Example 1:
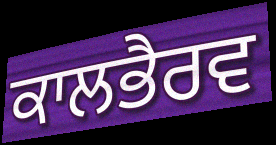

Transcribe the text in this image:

ਕਾਲਭੈਰਵ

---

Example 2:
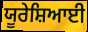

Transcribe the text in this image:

ਯੂਰੇਸ਼ਿਆਈ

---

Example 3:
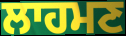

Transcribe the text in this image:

ਲਾਹਮਣ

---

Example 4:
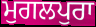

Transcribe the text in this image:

ਮੁਗਲਪੁਰਾ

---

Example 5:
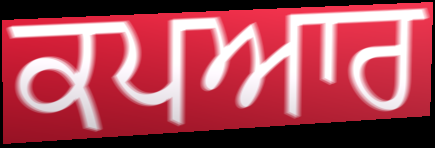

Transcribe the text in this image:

ਕਪਆਰ